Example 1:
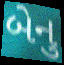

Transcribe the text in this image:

બેનુ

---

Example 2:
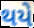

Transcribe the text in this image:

થયે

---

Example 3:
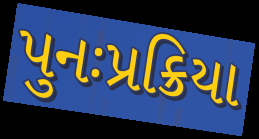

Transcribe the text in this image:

પુનઃપ્રક્રિયા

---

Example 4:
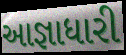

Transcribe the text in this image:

આજ્ઞાધારી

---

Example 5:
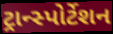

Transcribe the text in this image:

ટ્રાન્સ્પોર્ટેશન